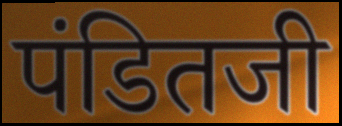
पंडितजी